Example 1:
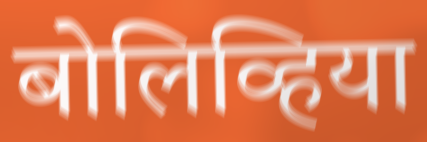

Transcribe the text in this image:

बोलिव्हिया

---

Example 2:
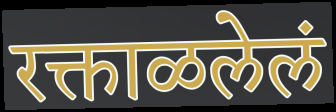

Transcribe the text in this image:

रक्ताळलेलं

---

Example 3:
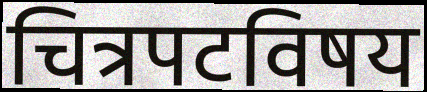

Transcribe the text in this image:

चित्रपटविषय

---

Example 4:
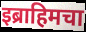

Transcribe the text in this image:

इब्राहिमचा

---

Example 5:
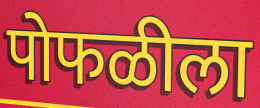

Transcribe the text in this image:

पोफळीला